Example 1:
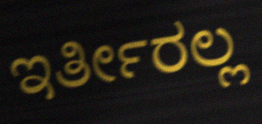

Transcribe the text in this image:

ಇರ್ತೀರಲ್ಲ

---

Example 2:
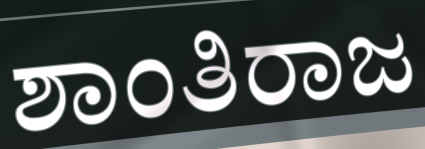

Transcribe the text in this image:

ಶಾಂತಿರಾಜ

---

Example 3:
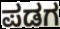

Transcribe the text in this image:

ಪಡಗ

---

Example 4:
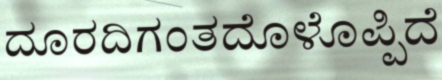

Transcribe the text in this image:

ದೂರದಿಗಂತದೊಳೊಪ್ಪಿದೆ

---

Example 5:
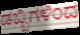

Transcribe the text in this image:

ಡಬ್ಬಿಗಳಿಂದ